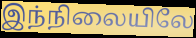
இந்நிலையிலே